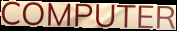
COMPUTER